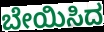
ಬೇಯಿಸಿದ